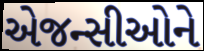
એજન્સીઓને